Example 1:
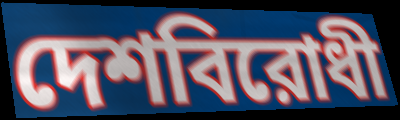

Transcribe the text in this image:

দেশবিরোধী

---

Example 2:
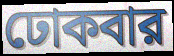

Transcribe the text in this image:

ঢোকবার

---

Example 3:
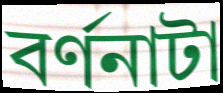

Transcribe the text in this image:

বর্ণনাটা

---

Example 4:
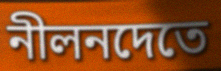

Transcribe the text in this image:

নীলনদেতে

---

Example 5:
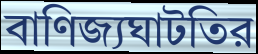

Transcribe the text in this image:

বাণিজ্যঘাটতির